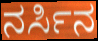
ನರ್ಸಿನ